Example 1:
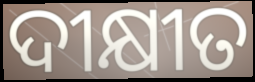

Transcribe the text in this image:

ଦୀକ୍ଷୀତ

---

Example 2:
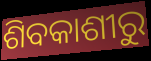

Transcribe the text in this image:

ଶିବକାଶୀରୁ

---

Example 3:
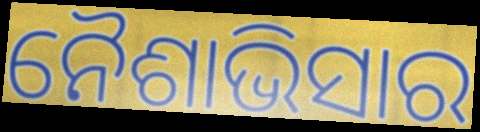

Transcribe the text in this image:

ନୈଶାଭିସାର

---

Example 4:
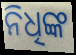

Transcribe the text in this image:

ନିଧିଙ୍କ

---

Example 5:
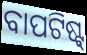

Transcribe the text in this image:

ବାପଟିଷ୍ଟ୍